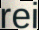
rei